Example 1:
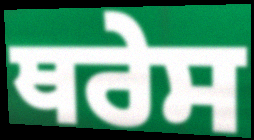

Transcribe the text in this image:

ਥਰੇਸ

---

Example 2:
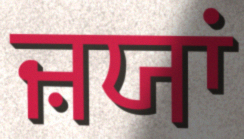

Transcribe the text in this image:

ਜ਼ਯਾਂ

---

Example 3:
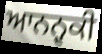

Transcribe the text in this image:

ਆਨਨ੍ਦਕੀ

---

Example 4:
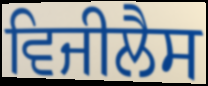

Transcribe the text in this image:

ਵਿਜੀਲੈਸ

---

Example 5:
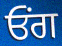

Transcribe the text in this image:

ਓਂਗ